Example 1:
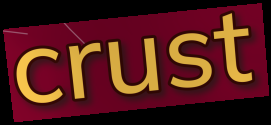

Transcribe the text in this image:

crust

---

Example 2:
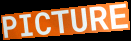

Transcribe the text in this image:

PICTURE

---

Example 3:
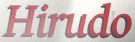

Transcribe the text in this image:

Hirudo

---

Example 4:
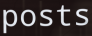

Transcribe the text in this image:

posts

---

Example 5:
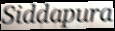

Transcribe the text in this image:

Siddapura